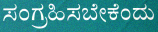
ಸಂಗ್ರಹಿಸಬೇಕೆಂದು